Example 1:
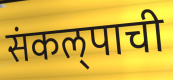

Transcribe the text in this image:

संकल्पाची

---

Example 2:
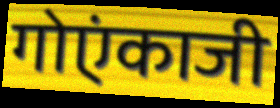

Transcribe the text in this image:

गोएंकाजी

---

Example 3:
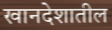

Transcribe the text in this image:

खानदेशातील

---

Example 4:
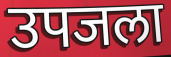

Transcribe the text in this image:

उपजला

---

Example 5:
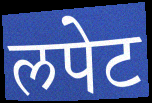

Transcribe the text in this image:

लपेट